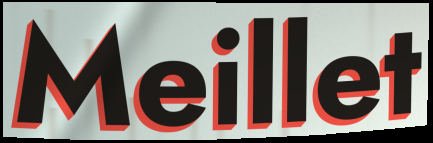
Meillet